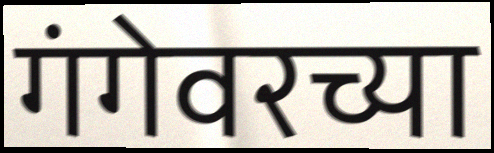
गंगेवरच्या